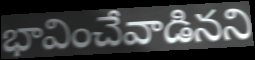
భావించేవాడినని